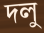
দলু